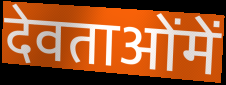
देवताओंमें